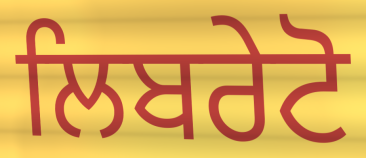
ਲਿਬਰੇਟੋ